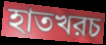
হাতখরচ